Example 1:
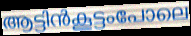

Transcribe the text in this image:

ആട്ടിൻകൂട്ടംപോലെ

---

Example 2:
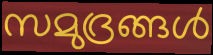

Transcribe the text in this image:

സമുദ്രങ്ങൾ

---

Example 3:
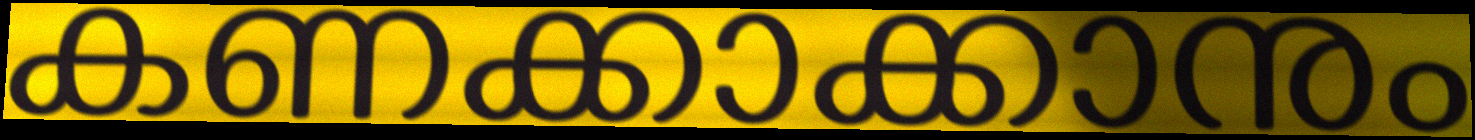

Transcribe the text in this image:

കണക്കാക്കാനും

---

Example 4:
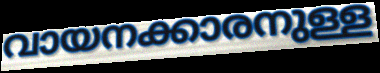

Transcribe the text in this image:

വായനക്കാരനുള്ള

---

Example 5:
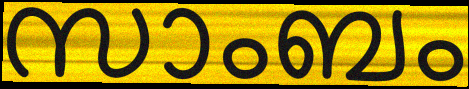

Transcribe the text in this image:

സാംബം